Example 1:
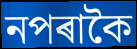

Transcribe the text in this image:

নপৰাকৈ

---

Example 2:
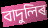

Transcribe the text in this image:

বাদুলিৰ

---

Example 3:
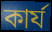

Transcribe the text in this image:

কাৰ্য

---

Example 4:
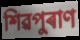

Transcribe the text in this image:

শিৱপুৰাণ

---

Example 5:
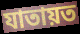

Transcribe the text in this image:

যাতায়ত